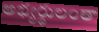
అభ్యర్థులంతా